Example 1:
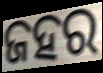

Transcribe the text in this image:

ଜହର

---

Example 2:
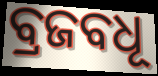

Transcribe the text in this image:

ବ୍ରଜବଧୂ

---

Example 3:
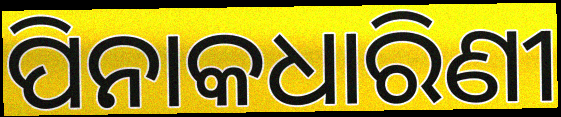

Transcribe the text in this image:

ପିନାକଧାରିଣୀ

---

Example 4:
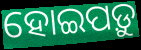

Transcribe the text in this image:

ହୋଇପଡ଼ୁ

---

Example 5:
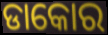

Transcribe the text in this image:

ଡାକୋର